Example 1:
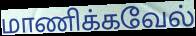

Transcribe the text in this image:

மாணிக்கவேல்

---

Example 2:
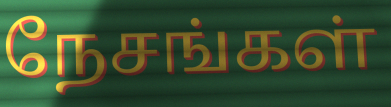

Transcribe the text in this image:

நேசங்கள்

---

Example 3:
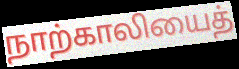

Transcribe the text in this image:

நாற்காலியைத்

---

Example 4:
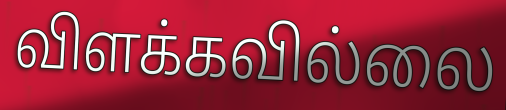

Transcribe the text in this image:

விளக்கவில்லை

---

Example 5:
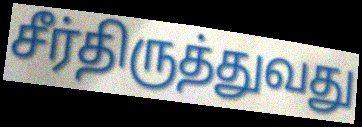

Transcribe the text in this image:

சீர்திருத்துவது